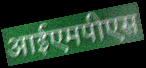
आईएमपीएस